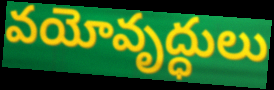
వయోవృద్ధులు